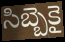
సిబ్బెకై